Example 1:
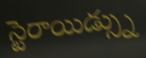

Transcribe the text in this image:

స్టెరాయిడ్స్ను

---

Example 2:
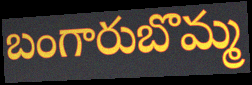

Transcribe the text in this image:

బంగారుబొమ్మ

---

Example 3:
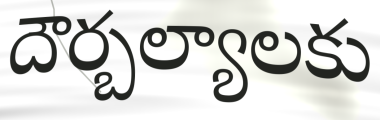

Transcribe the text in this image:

దౌర్బల్యాలకు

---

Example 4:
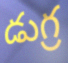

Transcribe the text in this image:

డుగ్ర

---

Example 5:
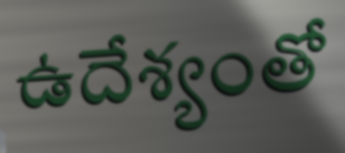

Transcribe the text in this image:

ఉదేశ్యంతో